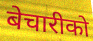
बेचारीको